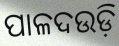
ପାଳଦଉଡ଼ି